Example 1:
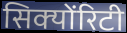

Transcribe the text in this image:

सिक्योंरिटी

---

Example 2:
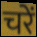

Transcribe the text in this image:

चरें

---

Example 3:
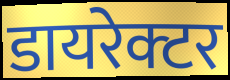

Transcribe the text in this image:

डायरेक्‍टर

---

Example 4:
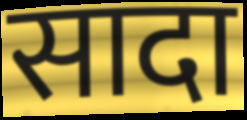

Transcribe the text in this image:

सादा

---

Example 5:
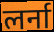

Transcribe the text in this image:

लर्ना